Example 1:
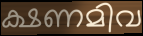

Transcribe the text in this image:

ക്ഷണമിവ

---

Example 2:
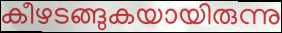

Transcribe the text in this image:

കീഴടങ്ങുകയായിരുന്നു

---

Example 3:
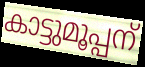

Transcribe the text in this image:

കാട്ടുമൂപ്പന്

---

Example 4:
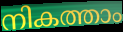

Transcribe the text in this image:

നികത്താം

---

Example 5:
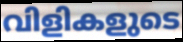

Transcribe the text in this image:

വിളികളുടെ